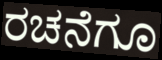
ರಚನೆಗೂ